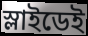
স্লাইডেই